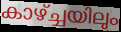
കാഴ്ച്ചയിലും